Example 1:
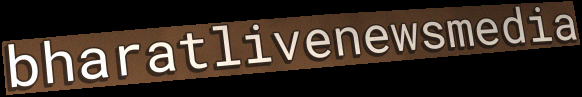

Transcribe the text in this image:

bharatlivenewsmedia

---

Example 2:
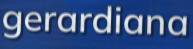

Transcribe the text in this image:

gerardiana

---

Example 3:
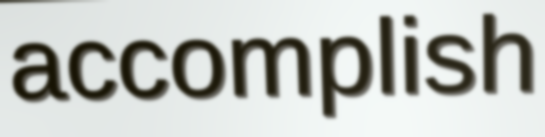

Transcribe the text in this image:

accomplish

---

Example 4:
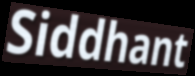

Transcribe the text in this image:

Siddhant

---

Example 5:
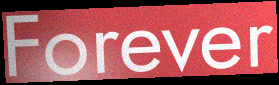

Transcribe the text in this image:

Forever